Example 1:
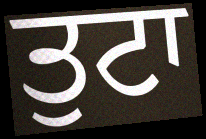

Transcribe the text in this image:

ਤੁਟਾ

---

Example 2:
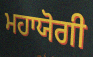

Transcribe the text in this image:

ਮਹਾਯੋਗੀ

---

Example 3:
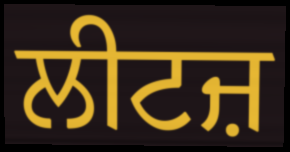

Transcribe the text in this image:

ਲੀਟਜ਼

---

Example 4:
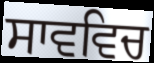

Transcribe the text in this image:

ਸਾਵਵਿਚ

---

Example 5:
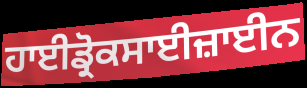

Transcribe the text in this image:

ਹਾਈਡ੍ਰੋਕਸਾਈਜ਼ਾਈਨ